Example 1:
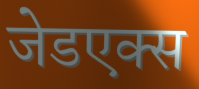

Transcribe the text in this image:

जेडएक्स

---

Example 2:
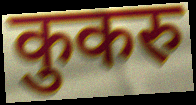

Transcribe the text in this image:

कुकरु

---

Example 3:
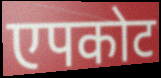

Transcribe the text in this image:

एपकोट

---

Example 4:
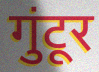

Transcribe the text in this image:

गुंटूर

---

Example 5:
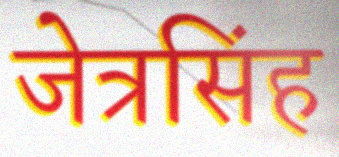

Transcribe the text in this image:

जेत्रसिंह